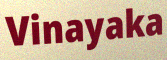
Vinayaka